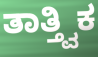
ತಾತ್ತ್ವಿಕ